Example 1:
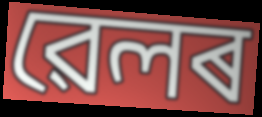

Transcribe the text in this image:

ৱেলৰ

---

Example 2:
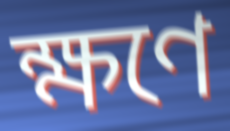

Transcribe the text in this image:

ক্ষণে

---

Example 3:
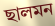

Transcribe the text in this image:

ছালমন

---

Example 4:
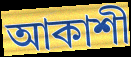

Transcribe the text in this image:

আকাশী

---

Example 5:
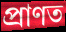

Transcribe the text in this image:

প্ৰাণত